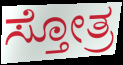
ಸ್ತೋತ್ರ